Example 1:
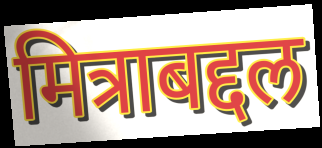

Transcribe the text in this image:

मित्राबद्दल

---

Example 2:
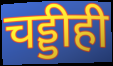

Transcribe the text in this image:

चड्डीही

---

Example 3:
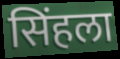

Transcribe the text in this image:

सिंहला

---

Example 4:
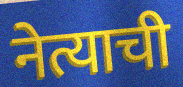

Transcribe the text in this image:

नेत्याची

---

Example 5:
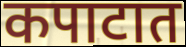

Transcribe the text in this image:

कपाटात